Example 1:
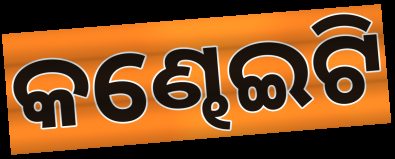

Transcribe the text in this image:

କଣ୍ଢେଇଟି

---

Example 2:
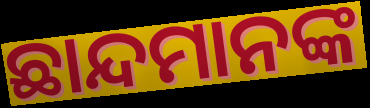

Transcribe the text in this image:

ଛାନ୍ଦମାନଙ୍କ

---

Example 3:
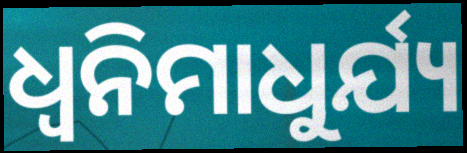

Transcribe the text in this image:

ଧ୍ୱନିମାଧୁର୍ଯ୍ୟ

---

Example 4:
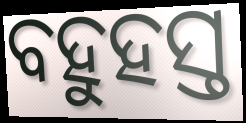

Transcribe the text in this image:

ବହୁହସ୍ତ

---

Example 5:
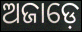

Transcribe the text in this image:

ଅଜାଡ଼େ